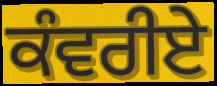
ਕੰਵਰੀਏ